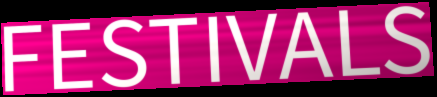
FESTIVALS